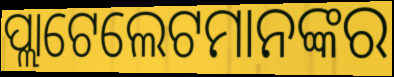
ପ୍ଲାଟେଲେଟମାନଙ୍କର